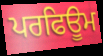
ਪਰਫਿਊਮ